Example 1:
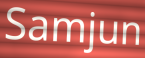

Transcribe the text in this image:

Samjun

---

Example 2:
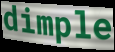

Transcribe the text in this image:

dimple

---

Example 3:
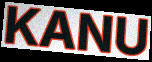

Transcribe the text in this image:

KANU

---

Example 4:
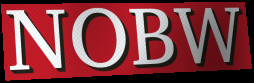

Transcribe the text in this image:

NOBW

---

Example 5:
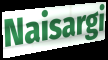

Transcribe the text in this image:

Naisargi